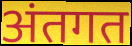
अंतगत